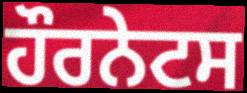
ਹੌਰਨੇਟਸ